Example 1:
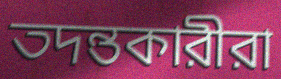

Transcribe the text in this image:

তদন্তকারীরা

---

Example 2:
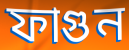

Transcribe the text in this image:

ফাগুন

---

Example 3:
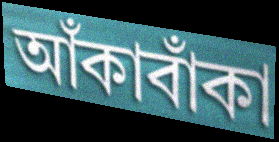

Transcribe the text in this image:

আঁকাবাঁকা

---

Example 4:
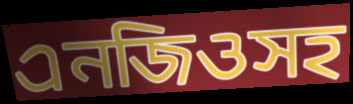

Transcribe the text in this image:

এনজিওসহ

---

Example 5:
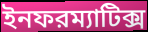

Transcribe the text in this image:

ইনফরম্যাটিক্স